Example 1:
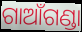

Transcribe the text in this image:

ଗାଆଁଗଣ୍ଡା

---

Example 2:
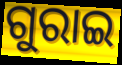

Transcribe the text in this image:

ଗୁରାଇ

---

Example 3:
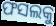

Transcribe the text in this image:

ଫସଲକୁ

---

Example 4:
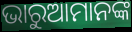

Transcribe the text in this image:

ଭାରୁଆମାନଙ୍କ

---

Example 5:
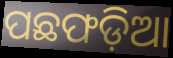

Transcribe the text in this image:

ପଛଫଡ଼ିଆ